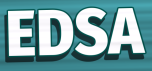
EDSA